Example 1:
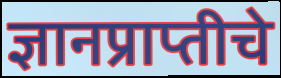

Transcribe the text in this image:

ज्ञानप्राप्तीचे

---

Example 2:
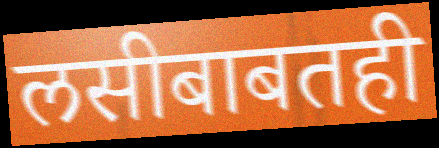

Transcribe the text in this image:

लसीबाबतही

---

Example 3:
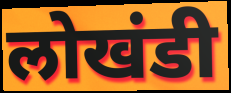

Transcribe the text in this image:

लोखंडी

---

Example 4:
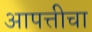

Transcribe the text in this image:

आपत्तीचा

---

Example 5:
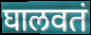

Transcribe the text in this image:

घालवतं